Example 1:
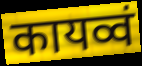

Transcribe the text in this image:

कायव्वं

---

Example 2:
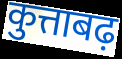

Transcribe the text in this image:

कुत्ताबढ़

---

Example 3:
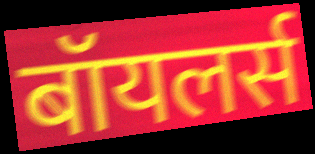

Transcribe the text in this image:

बॉयलर्स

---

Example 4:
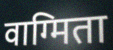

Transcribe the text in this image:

वाग्मिता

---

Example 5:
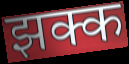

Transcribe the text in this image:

झक्क